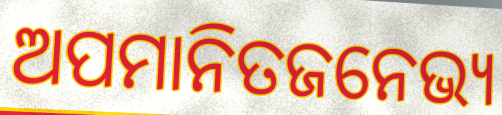
ଅପମାନିତଜନେଭ୍ୟ